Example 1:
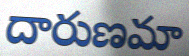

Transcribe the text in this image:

దారుణమా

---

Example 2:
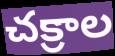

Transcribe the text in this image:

చక్రాల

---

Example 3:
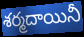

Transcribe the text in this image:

శర్మదాయినీ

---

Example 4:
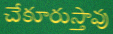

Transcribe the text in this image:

చేకూరుస్తావు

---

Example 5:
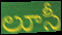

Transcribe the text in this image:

లూసీ